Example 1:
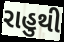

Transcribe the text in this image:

રાહુથી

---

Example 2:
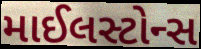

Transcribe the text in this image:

માઈલસ્ટોન્સ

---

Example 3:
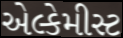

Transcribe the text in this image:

એલ્કેમીસ્ટ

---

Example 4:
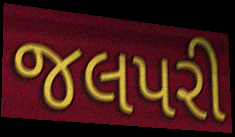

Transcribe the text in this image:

જલપરી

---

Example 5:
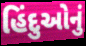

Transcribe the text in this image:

હિંદુઓનું